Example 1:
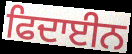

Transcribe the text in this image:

ਫਿਦਾਈਨ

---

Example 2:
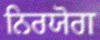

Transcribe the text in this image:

ਨਿਰਯੋਗ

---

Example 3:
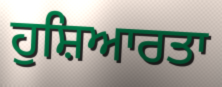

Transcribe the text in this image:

ਹੁਸ਼ਿਆਰਤਾ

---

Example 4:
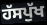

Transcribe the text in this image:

ਹੱਸਪੁੱਖ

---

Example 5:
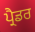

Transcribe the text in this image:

ਪ੍ਰੈਡਰ